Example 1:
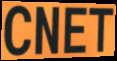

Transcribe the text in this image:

CNET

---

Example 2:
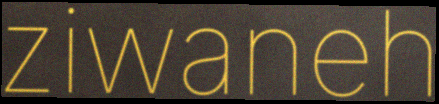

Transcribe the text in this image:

ziwaneh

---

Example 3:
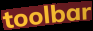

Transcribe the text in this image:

toolbar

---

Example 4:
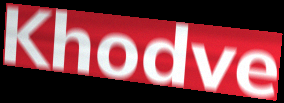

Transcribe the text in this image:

Khodve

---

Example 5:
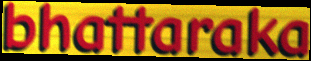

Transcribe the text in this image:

bhattaraka